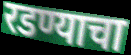
रडण्याचा